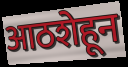
आठशेहून